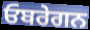
ਓਬਰੇਗਨ